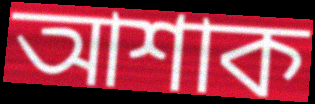
আশাক